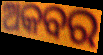
ଅକବର